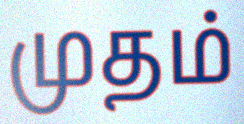
முதம்